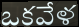
ఒకవేళ